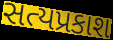
સત્યપ્રકાશ